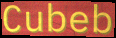
Cubeb